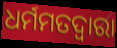
ଧର୍ମମତଦ୍ୱାରା